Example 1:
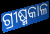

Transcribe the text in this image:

ଗ୍ରୀଷ୍ମକାଳ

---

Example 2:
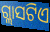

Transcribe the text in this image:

ଗ୍ଲାସଟିଏ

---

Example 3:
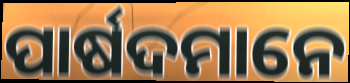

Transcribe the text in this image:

ପାର୍ଷଦମାନେ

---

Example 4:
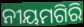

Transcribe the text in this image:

ନୀୟମଗିରି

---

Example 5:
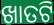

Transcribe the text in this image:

ଖାତଟି